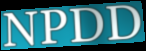
NPDD